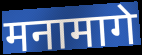
मनामागे